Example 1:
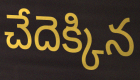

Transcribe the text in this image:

చేదెక్కిన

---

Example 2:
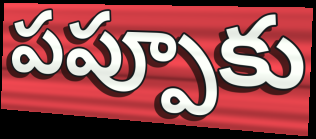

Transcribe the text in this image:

పప్పూకు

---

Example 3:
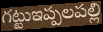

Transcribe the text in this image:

గట్టుఇప్పలపల్లి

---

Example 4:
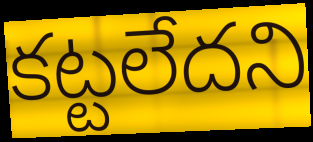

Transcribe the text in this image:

కట్టలేదని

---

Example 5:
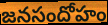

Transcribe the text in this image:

జనసందోహం